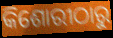
କିଶୋରୀଠାରୁ